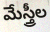
మేస్త్రీల